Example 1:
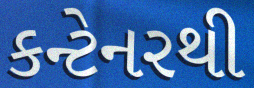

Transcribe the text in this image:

કન્ટેનરથી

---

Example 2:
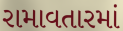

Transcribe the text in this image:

રામાવતારમાં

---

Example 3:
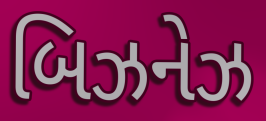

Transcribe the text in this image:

બિઝનેઝ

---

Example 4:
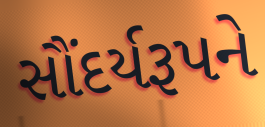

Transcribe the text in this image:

સૌંદર્યરૂપને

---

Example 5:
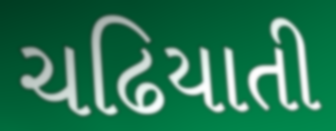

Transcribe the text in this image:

ચઢિયાતી